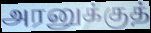
அரனுக்குத்